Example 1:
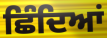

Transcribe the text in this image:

ਛਿੰਦਿਆਂ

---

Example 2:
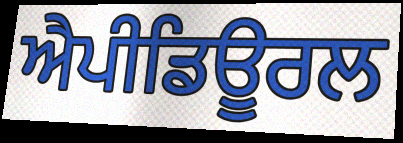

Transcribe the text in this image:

ਐਪੀਡਿਊਰਲ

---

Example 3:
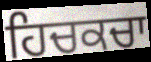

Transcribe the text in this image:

ਹਿਚਕਚਾ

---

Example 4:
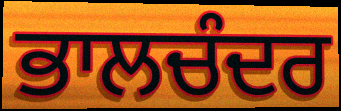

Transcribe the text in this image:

ਭਾਲਚੰਦਰ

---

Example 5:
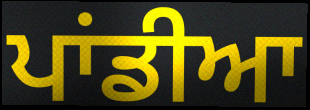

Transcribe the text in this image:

ਪਾਂਡੀਆ